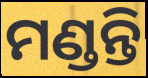
ମଣ୍ଡନ୍ତି